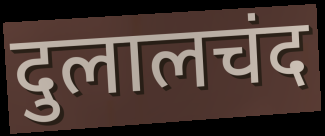
दुलालचंद